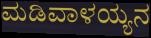
ಮಡಿವಾಳಯ್ಯನ